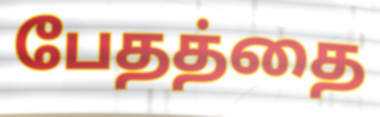
பேதத்தை